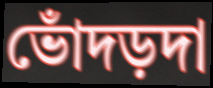
ভোঁদড়দা